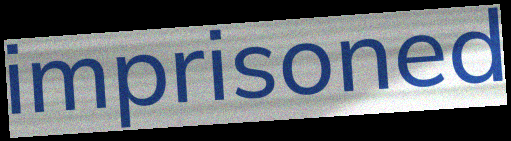
imprisoned